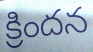
క్రిందన